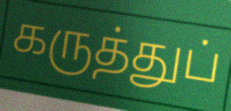
கருத்துப்